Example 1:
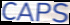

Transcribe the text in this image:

CAPS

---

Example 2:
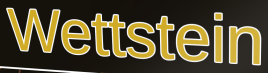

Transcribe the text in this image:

Wettstein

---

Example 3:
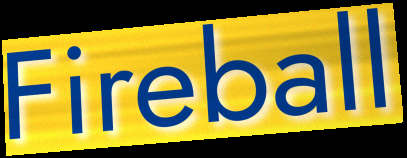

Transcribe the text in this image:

Fireball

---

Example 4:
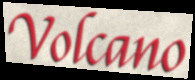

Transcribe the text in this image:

Volcano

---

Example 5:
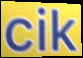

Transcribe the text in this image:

cik